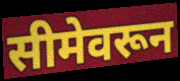
सीमेवरून